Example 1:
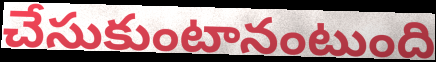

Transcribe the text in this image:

చేసుకుంటానంటుంది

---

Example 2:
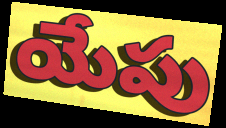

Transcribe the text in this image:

యేపు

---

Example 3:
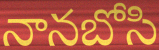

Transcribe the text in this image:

నానబోసి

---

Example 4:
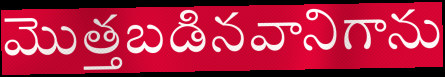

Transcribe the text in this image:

మొత్తబడినవానిగాను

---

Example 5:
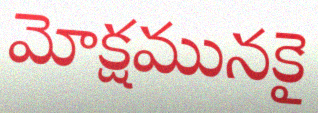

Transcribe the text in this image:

మోక్షమునకై